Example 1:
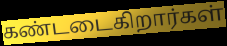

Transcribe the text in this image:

கண்டடைகிறார்கள்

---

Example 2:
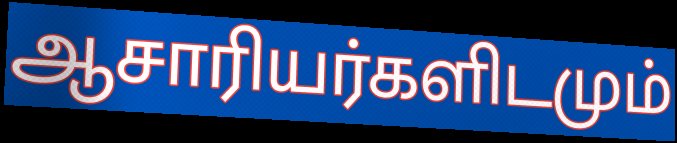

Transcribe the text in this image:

ஆசாரியர்களிடமும்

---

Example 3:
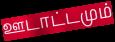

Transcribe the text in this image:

ஊடாட்டமும்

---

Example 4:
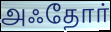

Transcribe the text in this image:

அஃதோர்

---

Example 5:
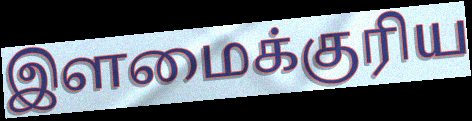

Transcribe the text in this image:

இளமைக்குரிய